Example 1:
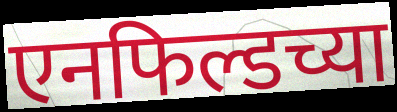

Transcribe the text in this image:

एनफिल्डच्या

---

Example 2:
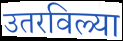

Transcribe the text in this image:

उतरविल्या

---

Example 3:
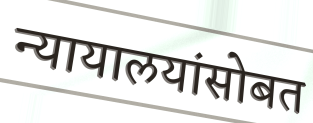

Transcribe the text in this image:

न्यायालयांसोबत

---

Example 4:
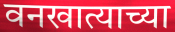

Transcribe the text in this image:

वनखात्याच्या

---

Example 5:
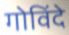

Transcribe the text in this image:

गोविंदे